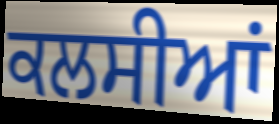
ਕਲਸੀਆਂ